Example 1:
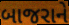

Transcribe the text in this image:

બાજરાને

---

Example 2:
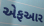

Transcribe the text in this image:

એફઆર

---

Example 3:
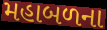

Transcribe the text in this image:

મહાબળના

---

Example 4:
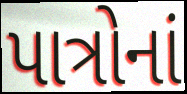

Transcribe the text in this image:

પાત્રોનાં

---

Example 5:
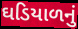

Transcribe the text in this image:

ઘડિયાળનું